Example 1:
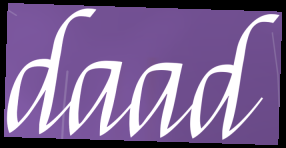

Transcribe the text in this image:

daad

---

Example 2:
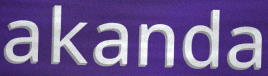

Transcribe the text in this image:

akanda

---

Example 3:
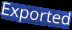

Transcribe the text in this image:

Exported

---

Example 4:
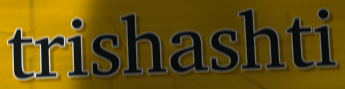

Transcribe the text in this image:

trishashti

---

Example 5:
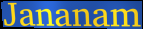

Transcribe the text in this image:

Jananam